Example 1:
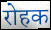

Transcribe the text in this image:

रोहक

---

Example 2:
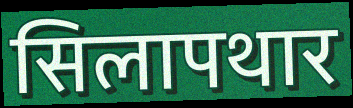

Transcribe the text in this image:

सिलापथार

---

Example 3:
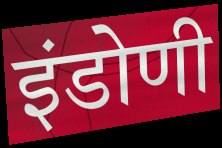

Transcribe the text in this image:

इंडोणी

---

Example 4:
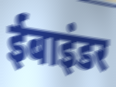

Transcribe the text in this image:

ईबाइंडर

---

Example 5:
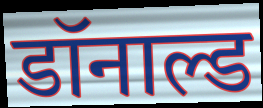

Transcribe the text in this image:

डॉनाल्ड